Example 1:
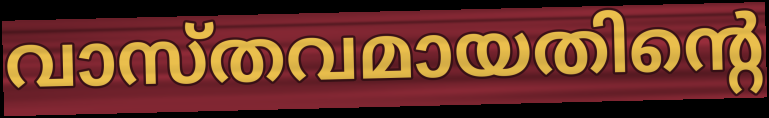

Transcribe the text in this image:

വാസ്തവമായതിന്റെ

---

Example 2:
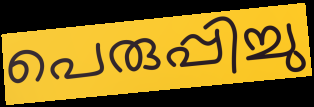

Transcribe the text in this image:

പെരുപ്പിച്ചു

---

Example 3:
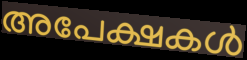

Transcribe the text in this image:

അപേക്ഷകൾ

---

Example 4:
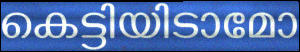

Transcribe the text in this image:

കെട്ടിയിടാമോ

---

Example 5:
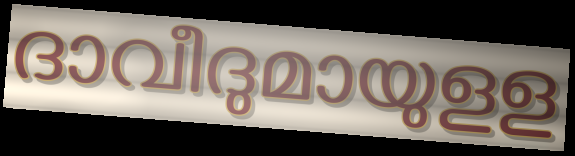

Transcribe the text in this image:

ദാവീദുമായുളള